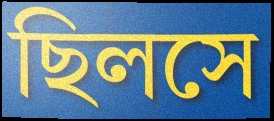
ছিলসে